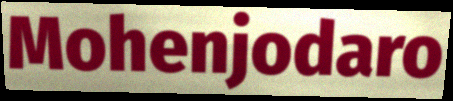
Mohenjodaro